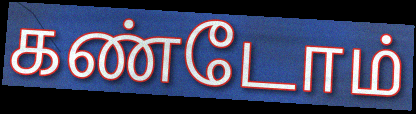
கண்டோம்